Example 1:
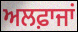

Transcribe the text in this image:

ਅਲਫ਼ਾਜਾਂ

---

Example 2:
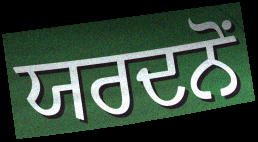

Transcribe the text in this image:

ਯਰਦਨੋਂ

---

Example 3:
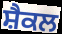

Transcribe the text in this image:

ਸ਼ੈਕਲ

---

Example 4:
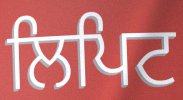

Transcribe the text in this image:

ਲਿਪਿਟ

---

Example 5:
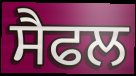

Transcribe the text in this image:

ਸੈਫਲ